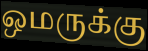
ஒமருக்கு